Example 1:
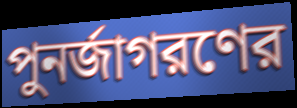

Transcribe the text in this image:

পুনর্জাগরণের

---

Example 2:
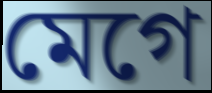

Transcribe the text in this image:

মেগে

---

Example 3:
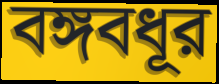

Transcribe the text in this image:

বঙ্গবধূর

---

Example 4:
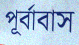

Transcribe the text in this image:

পূর্বাবাস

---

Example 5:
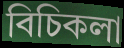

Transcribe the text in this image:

বিচিকলা